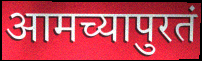
आमच्यापुरतं